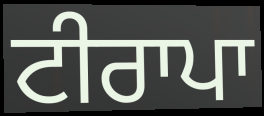
ਟੀਰਾਪਾ